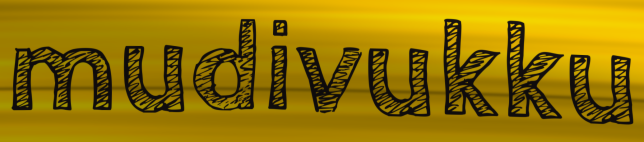
mudivukku